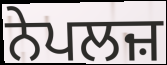
ਨੇਪਲਜ਼